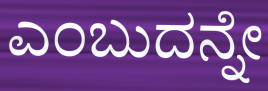
ಎಂಬುದನ್ನೇ